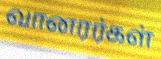
வானரர்கள்